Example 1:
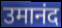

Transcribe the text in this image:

उमानंद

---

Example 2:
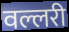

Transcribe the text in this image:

वल्लरी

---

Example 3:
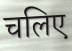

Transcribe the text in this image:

चलिए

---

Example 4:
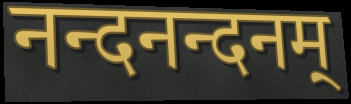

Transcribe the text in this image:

नन्दनन्दनम्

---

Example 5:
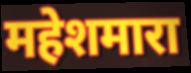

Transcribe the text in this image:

महेशमारा